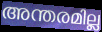
അന്തരമില്ല